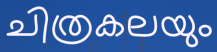
ചിത്രകലയും